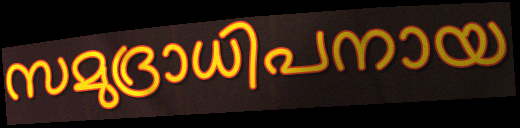
സമുദ്രാധിപനായ